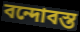
বন্দোবস্ত